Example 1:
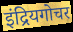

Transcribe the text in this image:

इंद्रियगोचर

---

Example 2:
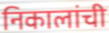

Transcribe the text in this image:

निकालांची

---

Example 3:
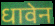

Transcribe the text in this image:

धावेन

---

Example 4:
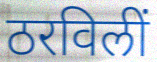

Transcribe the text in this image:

ठरविलीं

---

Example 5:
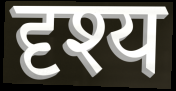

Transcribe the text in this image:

दृश्‍य